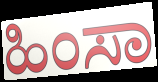
ಹಿಂಸಾ